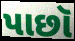
પાછૉ